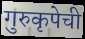
गुरुकृपेची